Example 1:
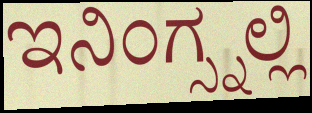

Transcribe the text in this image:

ಇನಿಂಗ್ಸ್ನಲ್ಲಿ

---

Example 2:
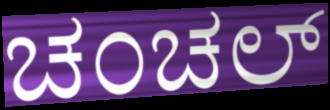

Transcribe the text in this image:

ಚಂಚಲ್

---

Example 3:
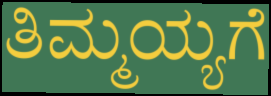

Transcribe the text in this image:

ತಿಮ್ಮಯ್ಯಗೆ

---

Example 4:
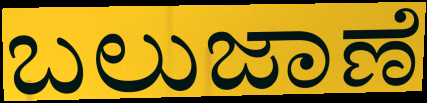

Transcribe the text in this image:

ಬಲುಜಾಣೆ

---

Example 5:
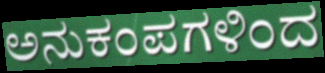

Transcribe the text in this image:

ಅನುಕಂಪಗಳಿಂದ